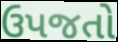
ઉપજતો